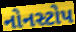
નોનસ્ટોપ